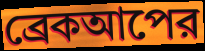
ব্রেকআপের